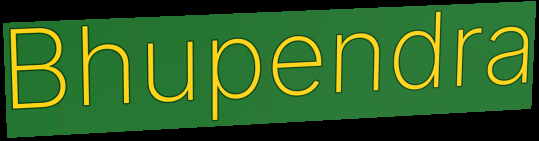
Bhupendra